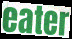
eater